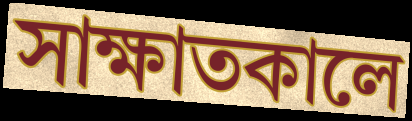
সাক্ষাতকালে